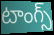
టాంగ్స్